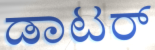
ಡಾಟರ್